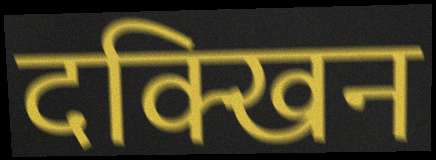
दक्खिन